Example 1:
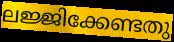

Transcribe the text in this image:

ലജ്ജിക്കേണ്ടതു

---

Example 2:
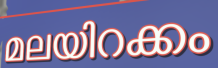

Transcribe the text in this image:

മലയിറക്കം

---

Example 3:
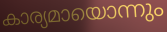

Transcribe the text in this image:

കാര്യമായൊന്നും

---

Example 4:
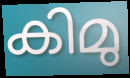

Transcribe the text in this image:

കിമു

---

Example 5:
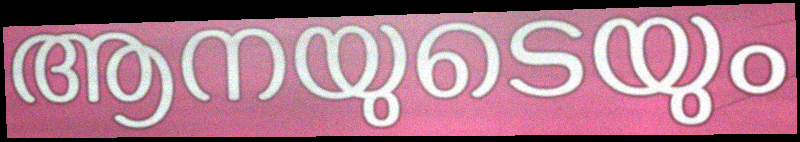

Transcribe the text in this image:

ആനയുടെയും